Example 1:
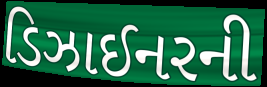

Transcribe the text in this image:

ડિઝાઈનરની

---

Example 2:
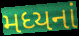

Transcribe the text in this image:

મધ્યનાં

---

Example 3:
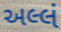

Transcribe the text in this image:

અલ્લં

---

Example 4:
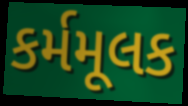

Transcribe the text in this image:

કર્મમૂલક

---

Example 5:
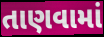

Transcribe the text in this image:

તાણવામાં